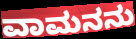
ವಾಮನನು